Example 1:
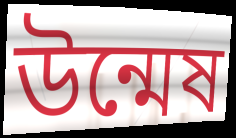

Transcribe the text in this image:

উন্মেষ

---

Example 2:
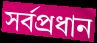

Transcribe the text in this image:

সৰ্বপ্ৰধান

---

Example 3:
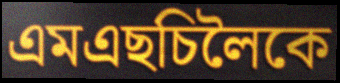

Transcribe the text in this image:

এমএছচিলৈকে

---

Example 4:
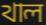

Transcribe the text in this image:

থাল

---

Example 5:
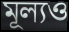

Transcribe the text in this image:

মূল্যও